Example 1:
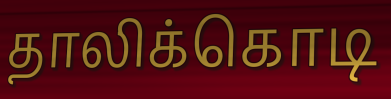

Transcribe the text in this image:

தாலிக்கொடி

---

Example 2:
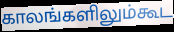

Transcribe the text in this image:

காலங்களிலும்கூட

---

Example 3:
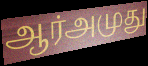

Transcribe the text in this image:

ஆர்அமுது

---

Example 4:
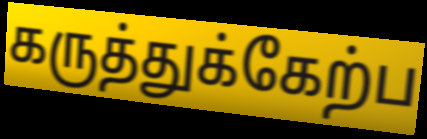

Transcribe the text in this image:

கருத்துக்கேற்ப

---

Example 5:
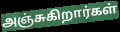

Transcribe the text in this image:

அஞ்சுகிறார்கள்